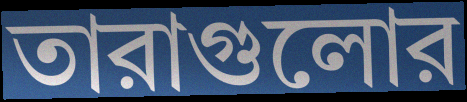
তারাগুলোর